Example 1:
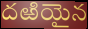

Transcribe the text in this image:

దఱియైన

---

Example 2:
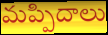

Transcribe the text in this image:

మప్పిదాలు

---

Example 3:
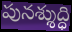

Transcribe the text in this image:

పునశ్శుద్ధి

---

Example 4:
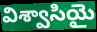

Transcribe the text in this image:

విశ్వాసియై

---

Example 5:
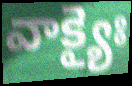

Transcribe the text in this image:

వాక్యైః